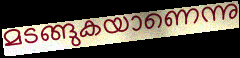
മടങ്ങുകയാണെന്നു